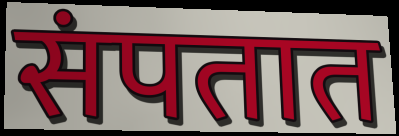
संपतात